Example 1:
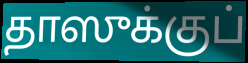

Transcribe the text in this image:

தாஸுக்குப்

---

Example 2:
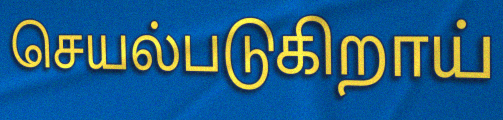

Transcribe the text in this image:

செயல்படுகிறாய்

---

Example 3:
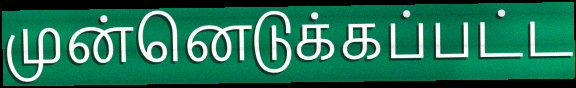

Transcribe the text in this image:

முன்னெடுக்கப்பட்ட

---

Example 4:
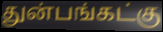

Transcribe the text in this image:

துன்பங்கட்கு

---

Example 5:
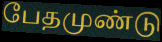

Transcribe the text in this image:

பேதமுண்டு